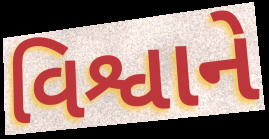
વિશ્વાને